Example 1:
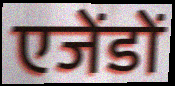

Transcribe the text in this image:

एजेंडों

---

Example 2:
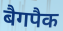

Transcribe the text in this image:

बैगपैक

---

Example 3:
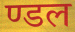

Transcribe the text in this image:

ण्डल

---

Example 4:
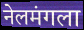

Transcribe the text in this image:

नेलमंगला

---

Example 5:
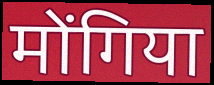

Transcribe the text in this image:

मोंगिया